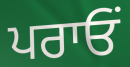
ਪਰਾਓਂ